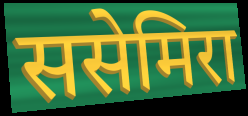
ससेमिरा